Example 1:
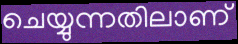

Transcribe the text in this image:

ചെയ്യുന്നതിലാണ്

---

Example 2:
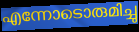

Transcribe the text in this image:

എന്നോടൊരുമിച്ചു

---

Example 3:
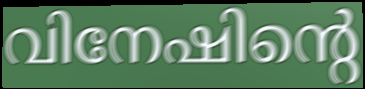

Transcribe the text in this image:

വിനേഷിന്റെ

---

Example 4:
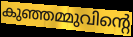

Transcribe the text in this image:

കുഞ്ഞമ്മുവിന്റെ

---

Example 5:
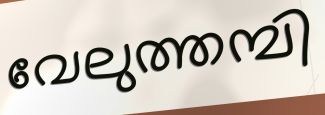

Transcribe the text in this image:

വേലുത്തമ്പി